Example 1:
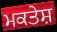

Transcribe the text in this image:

ਮਕਤੇਸ਼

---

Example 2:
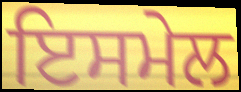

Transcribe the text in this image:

ਇਸਮੇਲ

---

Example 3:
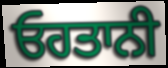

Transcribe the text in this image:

ਓਹਤਾਨੀ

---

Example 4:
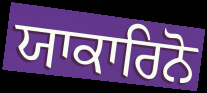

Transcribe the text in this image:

ਯਾਕਾਰਿਨੋ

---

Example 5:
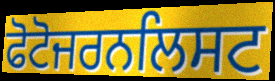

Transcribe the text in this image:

ਫੋਟੋਜਰਨਲਿਸਟ